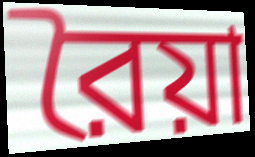
রৈয়া